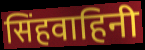
सिंहवाहिनी